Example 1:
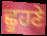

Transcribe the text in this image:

ਛੂਹਣੇ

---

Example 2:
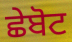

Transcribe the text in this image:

ਛੇਬੋਟ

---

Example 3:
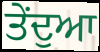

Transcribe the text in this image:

ਤੇਂਦੁਆ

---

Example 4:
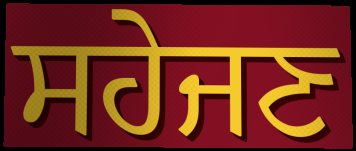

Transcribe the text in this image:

ਸਹੇਜਣ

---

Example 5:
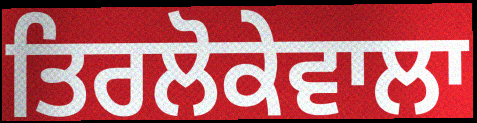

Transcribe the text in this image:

ਤਿਰਲੋਕੇਵਾਲਾ